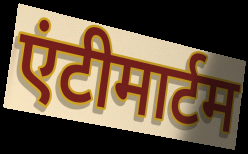
एंटीमार्टम